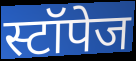
स्टॉपेज